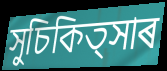
সুচিকিত্সাৰ